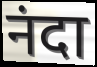
नंदा